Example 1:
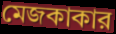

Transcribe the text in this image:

মেজকাকার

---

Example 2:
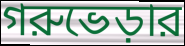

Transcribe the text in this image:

গরুভেড়ার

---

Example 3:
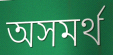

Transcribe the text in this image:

অসমর্থ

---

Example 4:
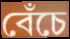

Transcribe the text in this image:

বেঁচে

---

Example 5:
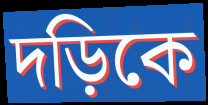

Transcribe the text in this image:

দড়িকে